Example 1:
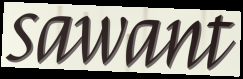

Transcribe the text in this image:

sawant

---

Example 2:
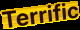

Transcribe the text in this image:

Terrific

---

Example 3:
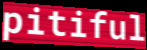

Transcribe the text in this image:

pitiful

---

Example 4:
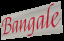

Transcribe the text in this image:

Bangale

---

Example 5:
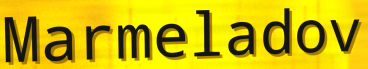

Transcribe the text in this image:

Marmeladov